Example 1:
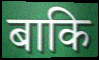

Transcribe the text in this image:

बाकि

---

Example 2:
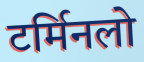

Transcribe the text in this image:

टर्मिनलो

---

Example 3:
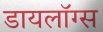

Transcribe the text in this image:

डायलॉग्स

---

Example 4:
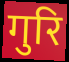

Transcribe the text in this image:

गुरि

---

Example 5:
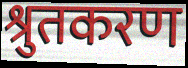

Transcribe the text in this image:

श्रुतकरण